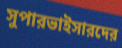
সুপারভাইসারদের